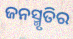
ଜନସ୍ମୃତିର